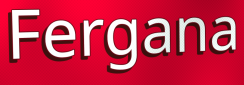
Fergana